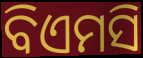
ବିଏମସି